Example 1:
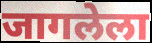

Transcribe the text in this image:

जागलेला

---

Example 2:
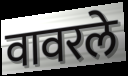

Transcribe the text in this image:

वावरले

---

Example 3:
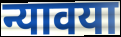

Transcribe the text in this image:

न्यावया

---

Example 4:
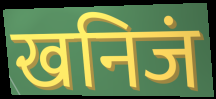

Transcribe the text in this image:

खनिजं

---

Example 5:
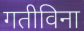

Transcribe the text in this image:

गतीविना